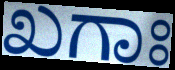
ಖಗಾಃ